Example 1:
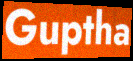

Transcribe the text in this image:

Guptha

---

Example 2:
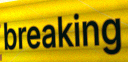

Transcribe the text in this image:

breaking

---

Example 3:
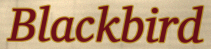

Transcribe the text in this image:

Blackbird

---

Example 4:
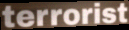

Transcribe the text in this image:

terrorist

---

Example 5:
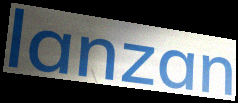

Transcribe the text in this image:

lanzan